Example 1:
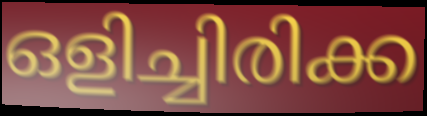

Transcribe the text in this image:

ഒളിച്ചിരിക്ക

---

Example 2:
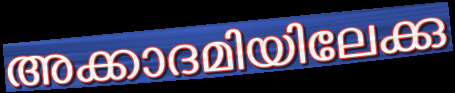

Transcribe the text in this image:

അക്കാദമിയിലേക്കു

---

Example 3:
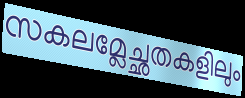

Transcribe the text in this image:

സകലമ്ലേച്ഛതകളിലും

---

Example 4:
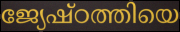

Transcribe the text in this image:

ജ്യേഷ്ഠത്തിയെ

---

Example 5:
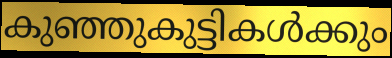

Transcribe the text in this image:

കുഞ്ഞുകുട്ടികൾക്കും